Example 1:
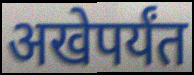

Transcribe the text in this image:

अखेपर्यंत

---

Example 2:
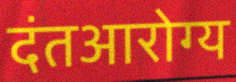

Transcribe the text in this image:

दंतआरोग्य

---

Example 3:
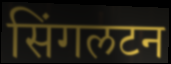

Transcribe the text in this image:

सिंगलटन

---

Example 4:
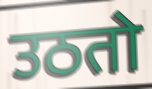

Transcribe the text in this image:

उठतो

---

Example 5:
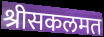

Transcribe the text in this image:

श्रीसकलमत